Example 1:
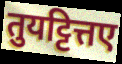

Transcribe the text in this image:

तुयट्टित्तए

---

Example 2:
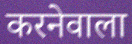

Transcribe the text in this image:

करनेवाला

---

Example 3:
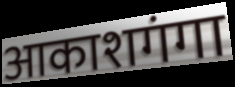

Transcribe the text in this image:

आकाशगंगा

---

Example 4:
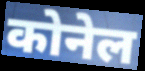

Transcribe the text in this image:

कोनेल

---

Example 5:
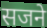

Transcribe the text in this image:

सजने